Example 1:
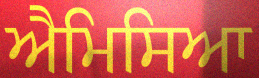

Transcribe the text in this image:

ਐਮਿਸਿਆ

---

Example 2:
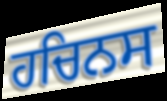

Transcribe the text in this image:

ਹਚਿਨਸ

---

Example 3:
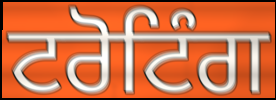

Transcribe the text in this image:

ਟਰੋਟਿੰਗ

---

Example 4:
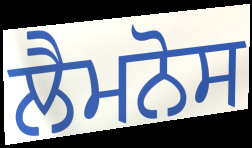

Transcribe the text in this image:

ਲੈਮਨੋਸ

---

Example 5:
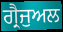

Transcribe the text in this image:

ਗ੍ਰੈਜੁਅਲ